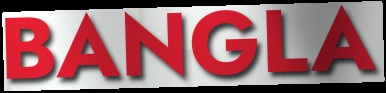
BANGLA